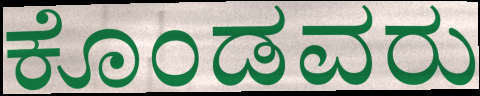
ಕೊಂಡವರು